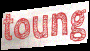
toung